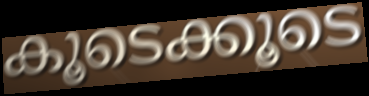
കൂടെക്കൂടെ